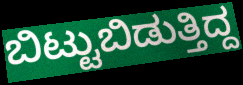
ಬಿಟ್ಟುಬಿಡುತ್ತಿದ್ದ